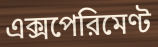
এক্সপেরিমেণ্ট